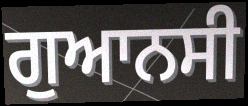
ਗੁਆਨਸੀ